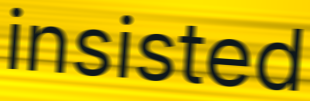
insisted